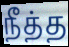
நீத்த